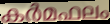
കർമഫലം